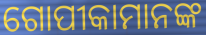
ଗୋପୀକାମାନଙ୍କ